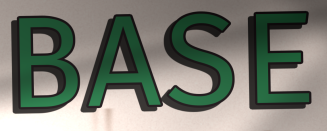
BASE